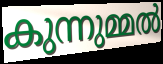
കുന്നുമ്മൽ